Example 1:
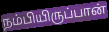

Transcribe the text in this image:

நம்பியிருப்பான்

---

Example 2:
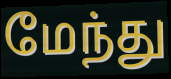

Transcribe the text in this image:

மேந்து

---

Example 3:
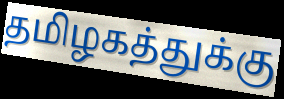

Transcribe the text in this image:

தமிழகத்துக்கு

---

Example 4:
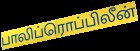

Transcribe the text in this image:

பாலிப்ரொப்பிலீன்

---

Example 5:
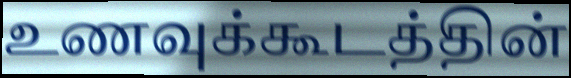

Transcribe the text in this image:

உணவுக்கூடத்தின்